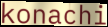
konachi